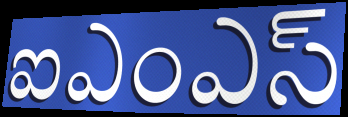
ఐఎంఎస్